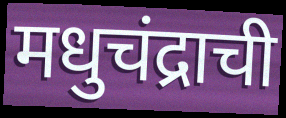
मधुचंद्राची